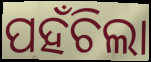
ପହଁଚିଲା